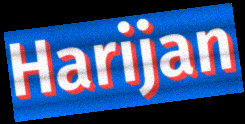
Harijan